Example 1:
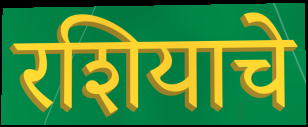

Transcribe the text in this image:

रशियाचे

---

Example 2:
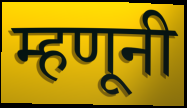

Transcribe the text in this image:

म्हणूनी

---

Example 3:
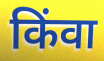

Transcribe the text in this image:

किंवा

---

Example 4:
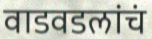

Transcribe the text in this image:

वाडवडलांचं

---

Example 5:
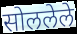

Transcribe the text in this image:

सोललेले